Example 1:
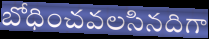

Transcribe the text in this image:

బోధించవలసినదిగా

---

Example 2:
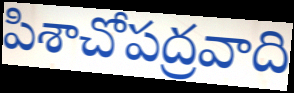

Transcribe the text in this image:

పిశాచోపద్రవాది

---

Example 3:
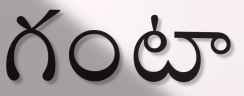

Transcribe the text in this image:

గంటా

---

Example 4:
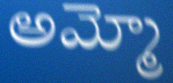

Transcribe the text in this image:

అమ్మో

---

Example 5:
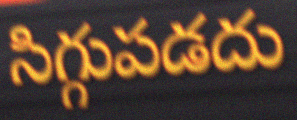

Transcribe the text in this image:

సిగ్గుపడదు